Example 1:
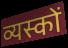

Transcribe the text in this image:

व्यस्कों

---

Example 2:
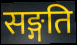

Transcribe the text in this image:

सङ्गति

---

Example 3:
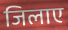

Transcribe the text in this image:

जिलाए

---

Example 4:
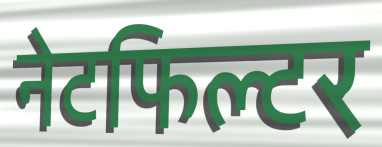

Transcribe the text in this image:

नेटफिल्टर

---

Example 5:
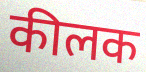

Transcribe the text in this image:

कीलक